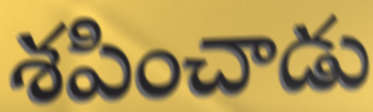
శపించాడు